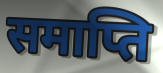
समाप्ति